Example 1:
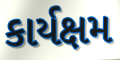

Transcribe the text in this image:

કાર્યક્ષમ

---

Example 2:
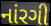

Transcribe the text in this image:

નાંરગી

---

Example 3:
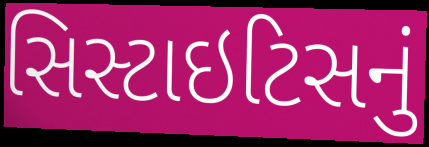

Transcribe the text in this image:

સિસ્ટાઇટિસનું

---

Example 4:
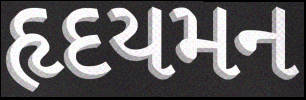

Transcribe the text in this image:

હૃદયમન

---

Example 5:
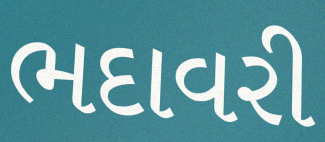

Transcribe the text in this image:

ભદાવરી